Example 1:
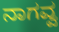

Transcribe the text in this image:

ನಾಗವ್ವ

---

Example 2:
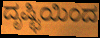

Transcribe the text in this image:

ದೃಷ್ಟಿಯಿಂದ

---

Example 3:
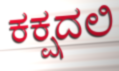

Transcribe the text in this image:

ಕಕ್ಷದಲಿ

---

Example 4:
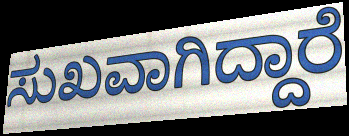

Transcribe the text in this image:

ಸುಖವಾಗಿದ್ದಾರೆ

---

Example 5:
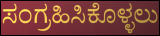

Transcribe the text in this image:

ಸಂಗ್ರಹಿಸಿಕೊಳ್ಳಲು